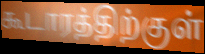
கூடாரத்திற்குள்